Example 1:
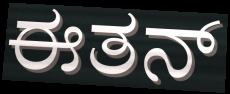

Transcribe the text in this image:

ಈತನ್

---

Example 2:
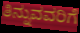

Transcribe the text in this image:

ತಿನ್ನುವವರಿಗೆ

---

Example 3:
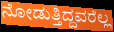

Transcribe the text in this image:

ನೋಡುತ್ತಿದ್ದವರೆಲ್ಲ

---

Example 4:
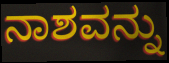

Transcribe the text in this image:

ನಾಶವನ್ನು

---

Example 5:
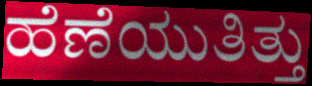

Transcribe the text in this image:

ಹೆಣೆಯುತಿತ್ತು